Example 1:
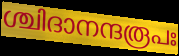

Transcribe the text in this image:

ശ്ചിദാനന്ദരൂപഃ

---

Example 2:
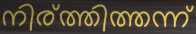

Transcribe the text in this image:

നിര്ത്തിത്തന്ന്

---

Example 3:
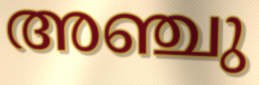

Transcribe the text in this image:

അഞ്ചു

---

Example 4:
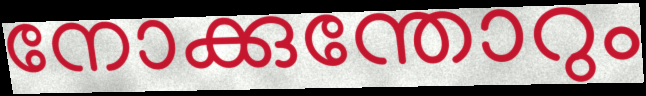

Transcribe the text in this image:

നോക്കുന്തോറും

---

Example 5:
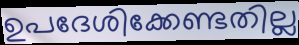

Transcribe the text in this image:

ഉപദേശിക്കേണ്ടതില്ല